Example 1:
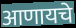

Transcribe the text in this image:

आणायचे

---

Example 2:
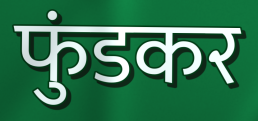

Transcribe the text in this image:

फुंडकर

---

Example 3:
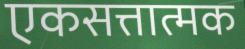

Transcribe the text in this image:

एकसत्तात्मक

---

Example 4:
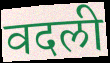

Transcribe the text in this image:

वदली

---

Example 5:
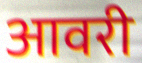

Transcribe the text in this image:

आवरी